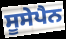
ਸੂਸੇਪੈਨ